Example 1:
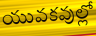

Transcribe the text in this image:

యువకవుల్లో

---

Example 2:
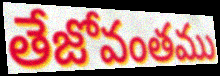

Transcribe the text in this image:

తేజోవంతము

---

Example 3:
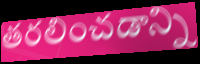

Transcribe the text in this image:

తరలించడాన్ని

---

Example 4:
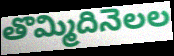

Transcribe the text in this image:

తొమ్మిదినెలల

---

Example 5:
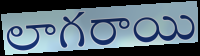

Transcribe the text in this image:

లాగరాయి